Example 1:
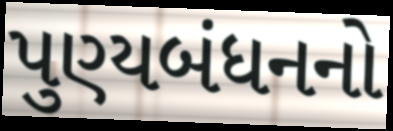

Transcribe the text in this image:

પુણ્યબંધનનો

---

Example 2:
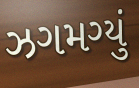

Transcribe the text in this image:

ઝગમગ્યું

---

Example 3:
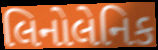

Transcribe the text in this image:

લિનોલેનિક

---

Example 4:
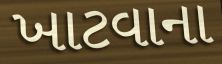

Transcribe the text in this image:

ખાટવાના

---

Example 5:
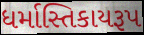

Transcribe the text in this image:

ધર્માસ્તિકાયરૂપ